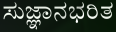
ಸುಜ್ಞಾನಭರಿತ